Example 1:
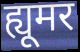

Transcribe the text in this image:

ह्यूमर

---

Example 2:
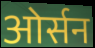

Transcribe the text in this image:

ओर्सन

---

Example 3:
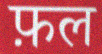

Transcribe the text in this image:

फ़ल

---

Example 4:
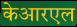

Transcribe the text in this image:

केआरएल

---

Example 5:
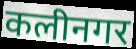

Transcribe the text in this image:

कलीनगर